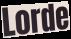
Lorde